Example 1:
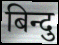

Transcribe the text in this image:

बिन्दु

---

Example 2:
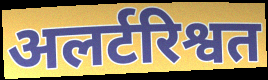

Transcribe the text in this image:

अलर्टरिश्वत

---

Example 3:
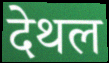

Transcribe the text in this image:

देथल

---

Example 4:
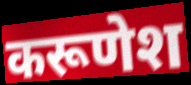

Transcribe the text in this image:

करूणेश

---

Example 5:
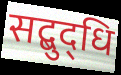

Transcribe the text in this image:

सद्बुद्धि